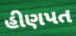
હીણપત